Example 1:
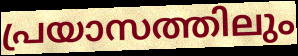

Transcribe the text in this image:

പ്രയാസത്തിലും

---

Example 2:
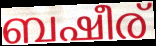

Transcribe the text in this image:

ബഷീര്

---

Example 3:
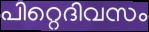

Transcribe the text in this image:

പിറ്റെദിവസം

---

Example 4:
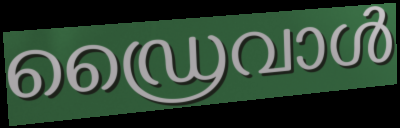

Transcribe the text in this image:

ഡ്രൈവാൾ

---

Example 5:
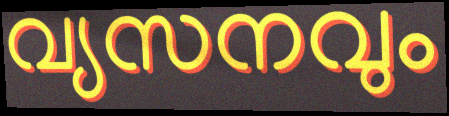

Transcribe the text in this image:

വ്യസനവും